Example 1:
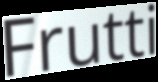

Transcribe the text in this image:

Frutti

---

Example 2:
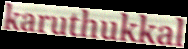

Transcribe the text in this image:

karuthukkal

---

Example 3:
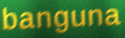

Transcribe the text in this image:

banguna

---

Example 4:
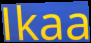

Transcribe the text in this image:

Ikaa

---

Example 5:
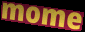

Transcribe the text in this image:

mome